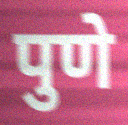
पुणे